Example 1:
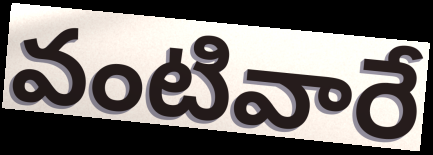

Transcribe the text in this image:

వంటివారే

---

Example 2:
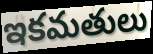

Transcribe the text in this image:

ఇకమతులు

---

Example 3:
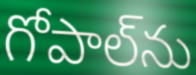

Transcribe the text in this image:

గోపాల్‌ను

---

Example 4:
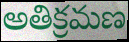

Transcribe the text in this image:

అతిక్రమణ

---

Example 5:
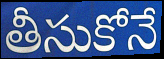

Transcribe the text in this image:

తీసుకోనే